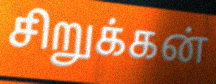
சிறுக்கன்